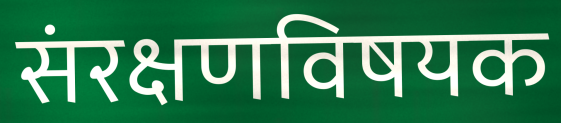
संरक्षणविषयक